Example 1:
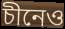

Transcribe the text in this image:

চীনেও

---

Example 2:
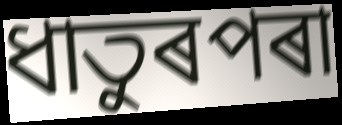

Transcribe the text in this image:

ধাতুৰপৰা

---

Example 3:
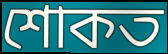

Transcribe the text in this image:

শোকত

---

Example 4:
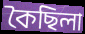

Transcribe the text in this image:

কৈছিলা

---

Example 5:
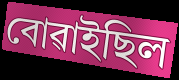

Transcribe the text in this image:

বোৱাইছিল